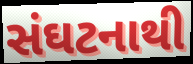
સંઘટનાથી